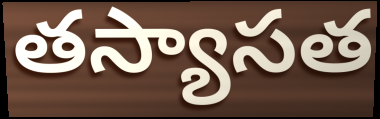
తస్యాసత